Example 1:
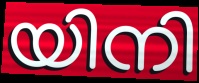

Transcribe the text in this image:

യിനി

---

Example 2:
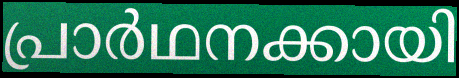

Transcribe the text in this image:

പ്രാർഥനക്കായി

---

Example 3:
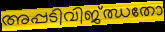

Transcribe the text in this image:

അപ്പടിവിജ്ഝതോ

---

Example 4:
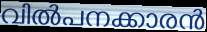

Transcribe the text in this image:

വിൽപനക്കാരൻ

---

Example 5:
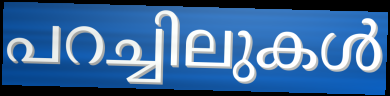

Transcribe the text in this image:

പറച്ചിലുകൾ